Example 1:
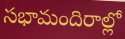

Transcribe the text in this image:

సభామందిరాల్లో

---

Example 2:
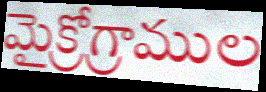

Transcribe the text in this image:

మైక్రోగ్రాముల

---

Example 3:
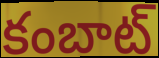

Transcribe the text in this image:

కంబాట్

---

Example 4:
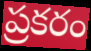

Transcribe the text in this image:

ప్రకరం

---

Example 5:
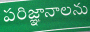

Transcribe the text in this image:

పరిజ్ఞానాలను